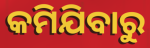
କମିଯିବାରୁ